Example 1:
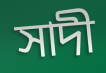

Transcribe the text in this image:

সাদী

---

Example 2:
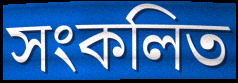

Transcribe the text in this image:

সংকলিত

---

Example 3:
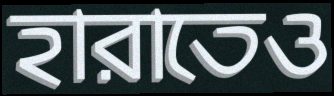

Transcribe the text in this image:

হারাতেও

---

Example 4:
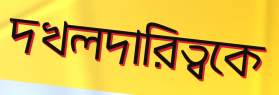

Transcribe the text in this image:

দখলদারিত্বকে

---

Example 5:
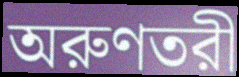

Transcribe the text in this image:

অরুণতরী